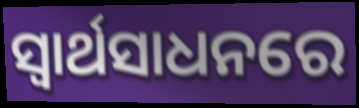
ସ୍ବାର୍ଥସାଧନରେ